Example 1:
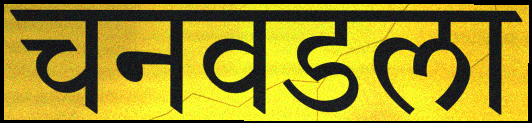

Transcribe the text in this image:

चनवडला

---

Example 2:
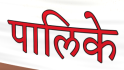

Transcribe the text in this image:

पालिके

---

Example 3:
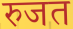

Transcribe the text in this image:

रुजत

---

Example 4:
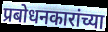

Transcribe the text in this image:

प्रबोधनकारांच्या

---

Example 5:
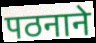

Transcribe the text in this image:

पठनाने